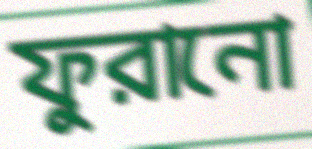
ফুরানো